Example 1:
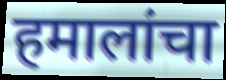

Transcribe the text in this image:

हमालांचा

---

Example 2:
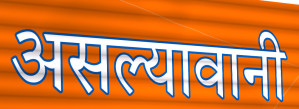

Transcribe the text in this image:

असल्यावानी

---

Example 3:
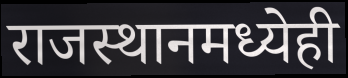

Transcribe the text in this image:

राजस्थानमध्येही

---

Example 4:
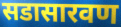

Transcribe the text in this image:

सडासारवण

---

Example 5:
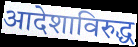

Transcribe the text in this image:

आदेशाविरुद्ध